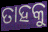
ତାହକୁ